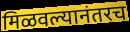
मिळवल्यानंतरच